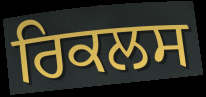
ਰਿਕਲਸ